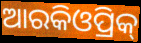
ଆରକିଓପ୍ରିକ୍